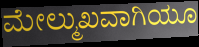
ಮೇಲ್ಮುಖವಾಗಿಯೂ